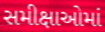
સમીક્ષાઓમાં